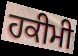
ਹਕੀਮੀ